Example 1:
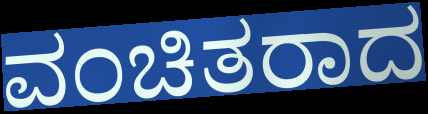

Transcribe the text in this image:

ವಂಚಿತರಾದ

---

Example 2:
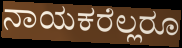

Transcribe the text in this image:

ನಾಯಕರೆಲ್ಲರೂ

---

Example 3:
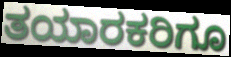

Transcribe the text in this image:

ತಯಾರಕರಿಗೂ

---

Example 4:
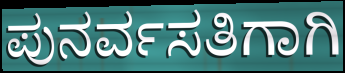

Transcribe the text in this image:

ಪುನರ್ವಸತಿಗಾಗಿ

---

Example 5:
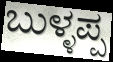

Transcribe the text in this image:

ಬುಳ್ಳಪ್ಪ